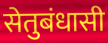
सेतुबंधासी